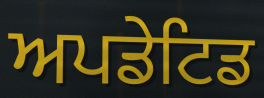
ਅਪਡੇਟਿਡ